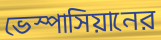
ভেস্পাসিয়ানের